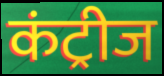
कंट्रीज